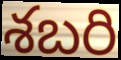
శబరి